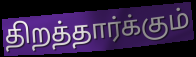
திறத்தார்க்கும்